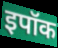
इपॉक